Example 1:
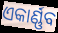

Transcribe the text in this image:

ଏକାର୍ଣ୍ଣବ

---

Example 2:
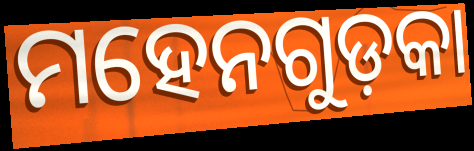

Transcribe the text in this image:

ମହେନଗୁଡ଼କା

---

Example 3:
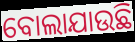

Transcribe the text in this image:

ବୋଲାଯାଉଛି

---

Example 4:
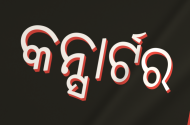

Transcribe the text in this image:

କନ୍ସାର୍ଟର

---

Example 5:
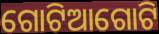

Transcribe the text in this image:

ଗୋଟିଆଗୋଟି